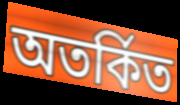
অতর্কিত